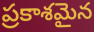
ప్రకాశమైన